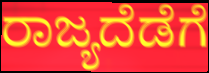
ರಾಜ್ಯದೆಡೆಗೆ